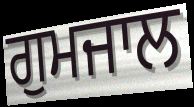
ਗੁਮਜਾਲ